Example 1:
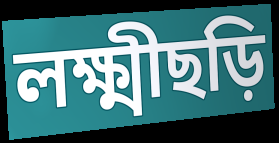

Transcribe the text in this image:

লক্ষ্মীছড়ি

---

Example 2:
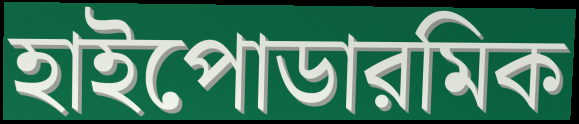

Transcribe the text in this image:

হাইপোডারমিক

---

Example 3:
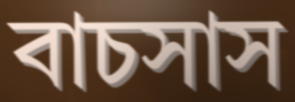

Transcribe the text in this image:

বাচসাস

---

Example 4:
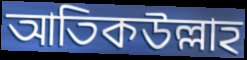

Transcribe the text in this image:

আতিকউল্লাহ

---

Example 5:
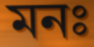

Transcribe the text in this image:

মনঃ